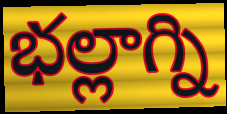
భల్లాగ్ని